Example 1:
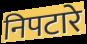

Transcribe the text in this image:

निपटारे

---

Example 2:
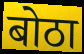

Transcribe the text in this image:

बोठा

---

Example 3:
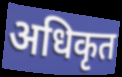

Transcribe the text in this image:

अधिकृत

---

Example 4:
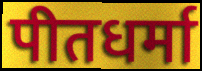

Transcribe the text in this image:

पीतधर्मा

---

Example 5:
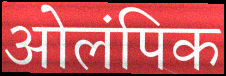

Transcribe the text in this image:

ओलंपिक